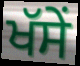
ਖੱਸੇਂ